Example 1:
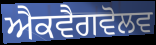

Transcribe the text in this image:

ਐਕਵੈਗਵੋਲਵ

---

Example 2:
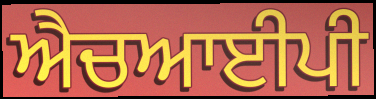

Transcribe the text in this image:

ਐਚਆਈਪੀ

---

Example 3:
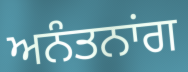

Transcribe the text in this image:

ਅਨੰਤਨਾਂਗ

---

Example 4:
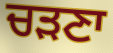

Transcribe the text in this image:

ਚੜਣਾ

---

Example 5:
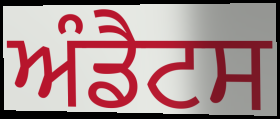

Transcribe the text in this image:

ਅੰਡੈਟਸ